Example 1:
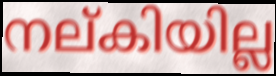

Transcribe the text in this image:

നല്കിയില്ല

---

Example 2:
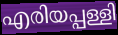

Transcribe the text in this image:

എരിയപ്പള്ളി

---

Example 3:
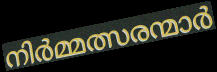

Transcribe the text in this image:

നിർമ്മത്സരന്മാർ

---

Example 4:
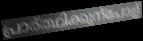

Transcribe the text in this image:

പ്രാര്ത്ഥിക്കുന്പോള്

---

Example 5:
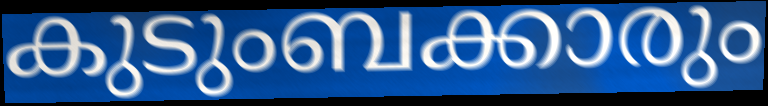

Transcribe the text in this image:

കുടുംബക്കാരും